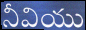
నీవియు